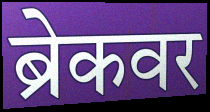
ब्रेकवर